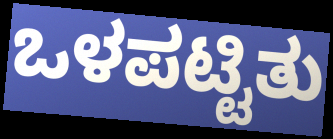
ಒಳಪಟ್ಟಿತು